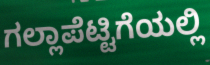
ಗಲ್ಲಾಪೆಟ್ಟಿಗೆಯಲ್ಲಿ